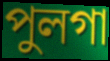
পুলগা